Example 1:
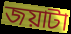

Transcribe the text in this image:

জয়াটা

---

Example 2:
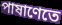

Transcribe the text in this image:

পাষাণেতে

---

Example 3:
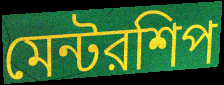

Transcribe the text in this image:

মেন্টরশিপ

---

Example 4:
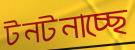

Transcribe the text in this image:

টনটনাচ্ছে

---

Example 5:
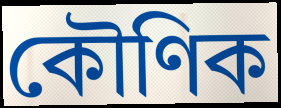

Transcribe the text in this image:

কৌণিক